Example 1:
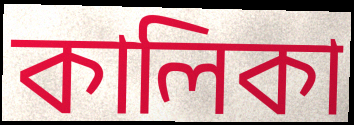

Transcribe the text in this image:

কালিকা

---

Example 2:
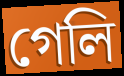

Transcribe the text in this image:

গেলি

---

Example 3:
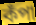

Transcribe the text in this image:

কঁপা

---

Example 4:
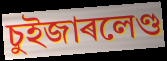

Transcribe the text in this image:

চুইজাৰলেণ্ড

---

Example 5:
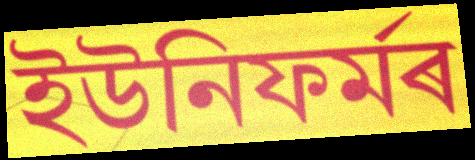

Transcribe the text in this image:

ইউনিফৰ্মৰ